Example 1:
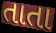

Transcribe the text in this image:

તાતા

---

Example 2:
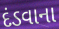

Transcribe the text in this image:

દંડવાના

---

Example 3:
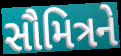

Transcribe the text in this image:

સૌમિત્રને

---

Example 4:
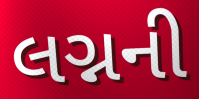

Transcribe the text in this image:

લગ્નની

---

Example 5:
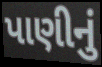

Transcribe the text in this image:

પાણીનું